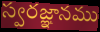
స్వరజ్ఞానము